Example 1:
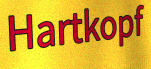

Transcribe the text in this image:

Hartkopf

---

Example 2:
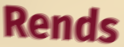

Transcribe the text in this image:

Rends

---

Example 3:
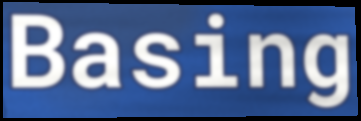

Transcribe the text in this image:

Basing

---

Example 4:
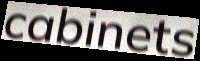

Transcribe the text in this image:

cabinets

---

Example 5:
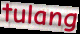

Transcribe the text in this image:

tulang